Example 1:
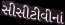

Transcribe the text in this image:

સીસીટીવીનાં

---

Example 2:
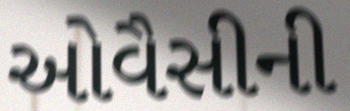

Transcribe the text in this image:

ઓવૈસીની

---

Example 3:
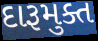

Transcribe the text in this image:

દારૂમુક્ત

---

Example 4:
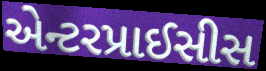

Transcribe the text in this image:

એન્ટરપ્રાઈસીસ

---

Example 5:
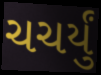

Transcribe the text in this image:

ચચર્યું